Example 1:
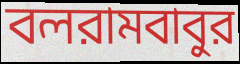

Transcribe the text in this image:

বলরামবাবুর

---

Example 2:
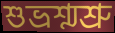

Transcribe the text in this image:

শুভ্রশ্মশ্রু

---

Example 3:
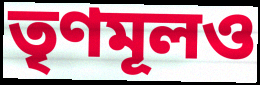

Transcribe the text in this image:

তৃণমূলও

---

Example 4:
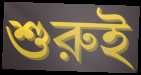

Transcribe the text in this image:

শুরুই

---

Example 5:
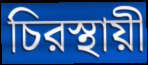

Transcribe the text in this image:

চিরস্থায়ী